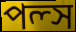
পল্স